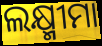
ଲକ୍ଷ୍ମୀମା